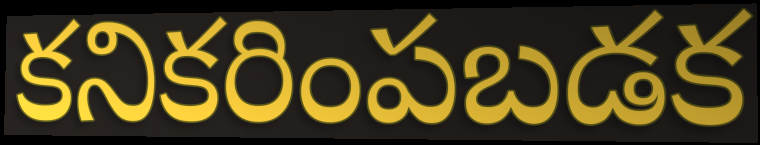
కనికరింపబడక